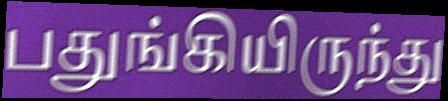
பதுங்கியிருந்து